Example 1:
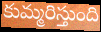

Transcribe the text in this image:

కుమ్మరిస్తుంది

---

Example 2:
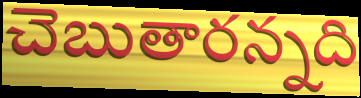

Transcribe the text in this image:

చెబుతారన్నది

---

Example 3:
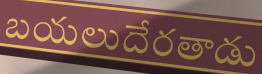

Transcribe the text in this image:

బయలుదేరతాడు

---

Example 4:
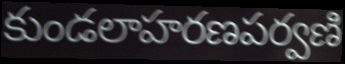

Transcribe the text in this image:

కుండలాహరణపర్వణి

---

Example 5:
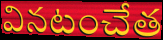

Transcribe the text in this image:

వినటంచేత